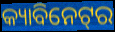
କ୍ୟାବିନେଟ୍‌ର